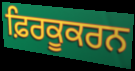
ਫ਼ਿਰਕੂਕਰਨ